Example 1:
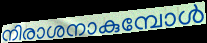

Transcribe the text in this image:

നിരാശനാകുമ്പോൾ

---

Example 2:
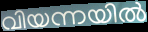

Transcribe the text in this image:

വിയന്നയിൽ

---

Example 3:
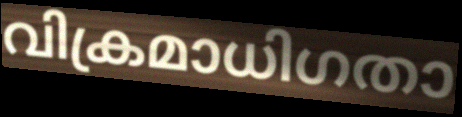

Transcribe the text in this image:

വിക്രമാധിഗതാ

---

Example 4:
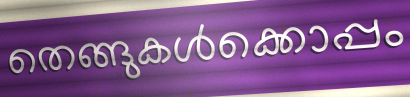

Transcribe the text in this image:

തെങ്ങുകൾക്കൊപ്പം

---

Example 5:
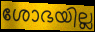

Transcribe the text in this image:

ശോഭയില്ല